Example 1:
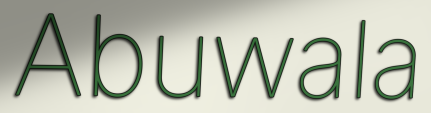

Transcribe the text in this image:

Abuwala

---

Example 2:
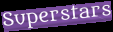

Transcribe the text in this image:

Superstars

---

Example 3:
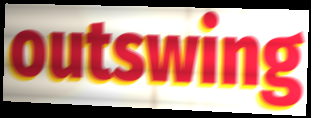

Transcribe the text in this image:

outswing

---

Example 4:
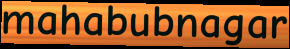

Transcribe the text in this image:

mahabubnagar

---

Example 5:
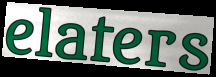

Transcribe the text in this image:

elaters